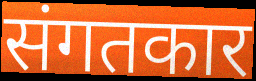
संगतकार